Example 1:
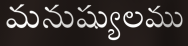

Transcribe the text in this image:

మనుష్యులము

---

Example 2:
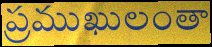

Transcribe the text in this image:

ప్రముఖులంతా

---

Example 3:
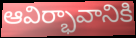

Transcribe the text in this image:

ఆవిర్భావానికి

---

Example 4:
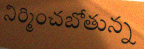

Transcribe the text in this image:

నిర్మించబోతున్న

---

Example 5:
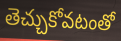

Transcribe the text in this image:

తెచ్చుకోవటంతో